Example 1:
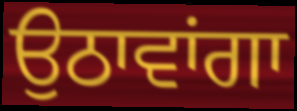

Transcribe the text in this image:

ਉਠਾਵਾਂਗਾ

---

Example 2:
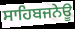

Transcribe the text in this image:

ਸਾਹਿਬਜਨੇਊ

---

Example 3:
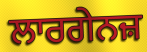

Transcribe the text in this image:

ਲਾਰਗੇਨਜ਼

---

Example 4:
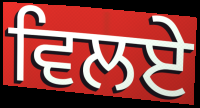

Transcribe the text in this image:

ਵਿਲਏ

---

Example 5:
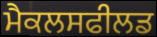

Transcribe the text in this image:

ਮੈਕਲਸਫੀਲਡ